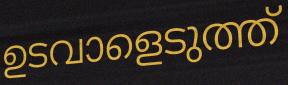
ഉടവാളെടുത്ത്